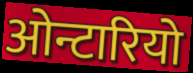
ओन्टारियो